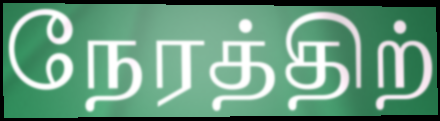
நேரத்திற்